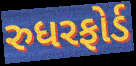
રુધરફોર્ડ